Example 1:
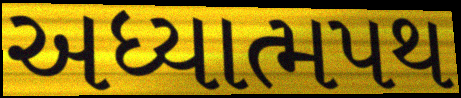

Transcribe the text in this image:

અધ્યાત્મપથ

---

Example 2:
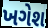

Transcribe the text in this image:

ખગેશ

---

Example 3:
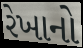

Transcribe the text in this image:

રેખાનો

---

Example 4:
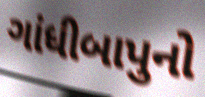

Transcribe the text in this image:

ગાંધીબાપુનો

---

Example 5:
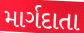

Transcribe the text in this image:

માર્ગદાતા